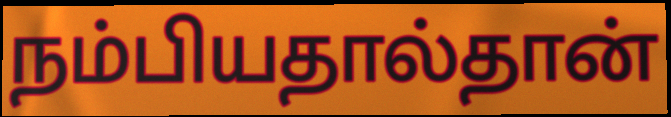
நம்பியதால்தான்